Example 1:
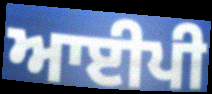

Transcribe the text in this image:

ਆਈਪੀ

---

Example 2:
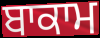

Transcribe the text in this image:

ਬਾਕਾਮ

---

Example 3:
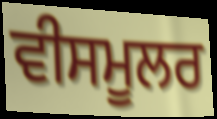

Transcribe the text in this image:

ਵੀਸਮੂਲਰ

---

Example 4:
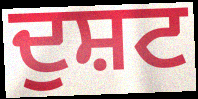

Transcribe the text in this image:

ਦੁਸ਼ਟ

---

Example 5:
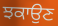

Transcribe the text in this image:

ਝਕਾਉਣ